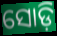
ସୋଡ଼ି